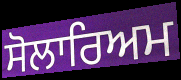
ਸੋਲਾਰਿਅਮ